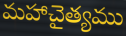
మహాచైత్యము